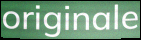
originale